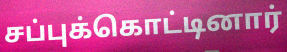
சப்புக்கொட்டினார்